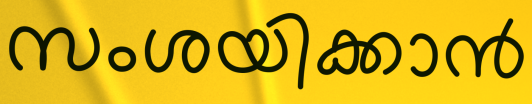
സംശയിക്കാൻ